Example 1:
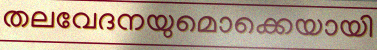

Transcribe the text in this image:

തലവേദനയുമൊക്കെയായി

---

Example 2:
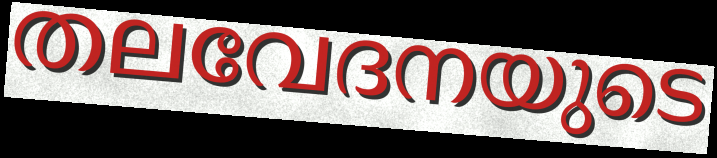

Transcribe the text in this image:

തലവേദനയുടെ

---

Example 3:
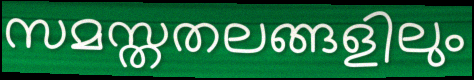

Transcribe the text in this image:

സമസ്തതലങ്ങളിലും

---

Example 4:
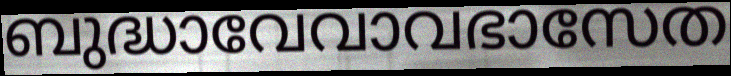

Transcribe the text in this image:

ബുദ്ധാവേവാവഭാസേത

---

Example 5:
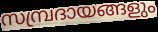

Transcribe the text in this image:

സമ്പ്രദായങ്ങളും